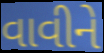
વાવીને